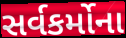
સર્વકર્મોના